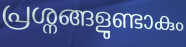
പ്രശ്നങ്ങളുണ്ടാകും